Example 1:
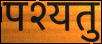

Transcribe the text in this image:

पश्यतु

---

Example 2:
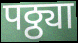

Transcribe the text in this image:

पठ्ठ्या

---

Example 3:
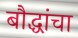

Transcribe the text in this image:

बौद्धांचा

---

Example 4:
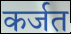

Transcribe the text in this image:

कर्जत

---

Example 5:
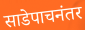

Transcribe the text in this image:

साडेपाचनंतर